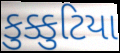
કુક્કુટિયા